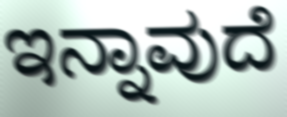
ಇನ್ನಾವುದೆ